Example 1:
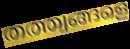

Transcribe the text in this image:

തത്ത്വങ്ങളെ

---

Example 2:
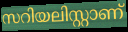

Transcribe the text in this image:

സറിയലിസ്റ്റാണ്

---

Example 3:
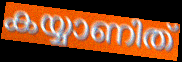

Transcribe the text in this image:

കയ്യാണിത്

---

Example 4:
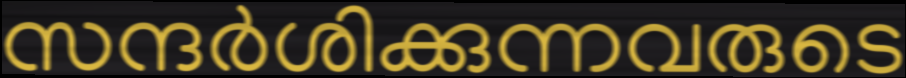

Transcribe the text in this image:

സന്ദർശിക്കുന്നവരുടെ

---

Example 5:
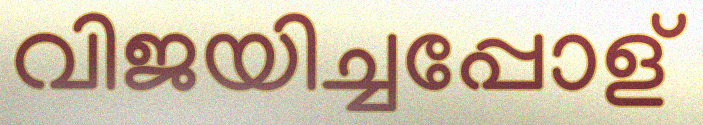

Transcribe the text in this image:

വിജയിച്ചപ്പോള്